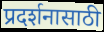
प्रदर्शनासाठी